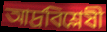
আর্দ্রবিশ্লেষী